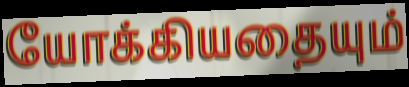
யோக்கியதையும்